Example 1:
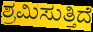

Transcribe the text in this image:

ಶ್ರಮಿಸುತ್ತಿದೆ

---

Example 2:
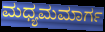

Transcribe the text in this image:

ಮಧ್ಯಮಮಾರ್ಗ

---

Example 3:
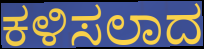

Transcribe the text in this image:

ಕಳಿಸಲಾದ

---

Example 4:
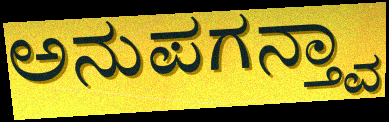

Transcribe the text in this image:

ಅನುಪಗನ್ತ್ವಾ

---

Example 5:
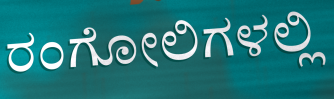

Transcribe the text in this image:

ರಂಗೋಲಿಗಳಲ್ಲಿ